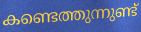
കണ്ടെത്തുന്നുണ്ട്